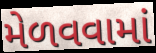
મેળવવામાં